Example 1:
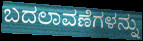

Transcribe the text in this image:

ಬದಲಾವಣೆಗಳನ್ನು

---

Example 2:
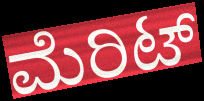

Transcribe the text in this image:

ಮೆರಿಟ್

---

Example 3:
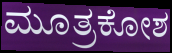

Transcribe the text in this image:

ಮೂತ್ರಕೋಶ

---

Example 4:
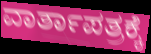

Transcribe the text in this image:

ವಾರ್ತಾಪತ್ರಕ್ಕೆ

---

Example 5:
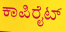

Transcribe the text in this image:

ಕಾಪಿರೈಟ್